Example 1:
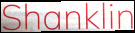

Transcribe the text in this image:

Shanklin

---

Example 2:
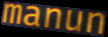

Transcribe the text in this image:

manun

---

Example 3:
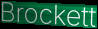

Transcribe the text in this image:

Brockett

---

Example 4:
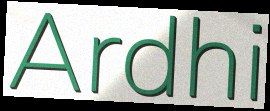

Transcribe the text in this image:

Ardhi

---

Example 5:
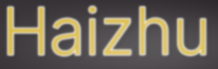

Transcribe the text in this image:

Haizhu